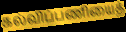
கல்விப்பணியைத்